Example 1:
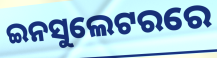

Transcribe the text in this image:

ଇନସୁଲେଟରରେ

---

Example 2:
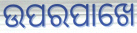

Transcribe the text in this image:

ଉପରପାଖେ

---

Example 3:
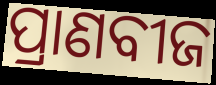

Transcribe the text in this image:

ପ୍ରାଣବୀଜ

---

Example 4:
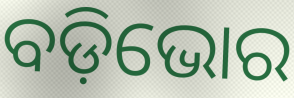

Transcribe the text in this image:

ବଡ଼ିଭୋର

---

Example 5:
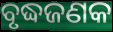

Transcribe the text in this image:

ବୃଦ୍ଧଜଣକ